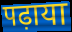
पढ़ाया